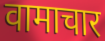
वामाचार